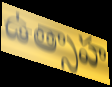
ఉత్సాహ